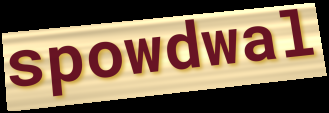
spowdwal